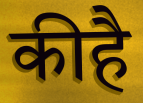
कीहै